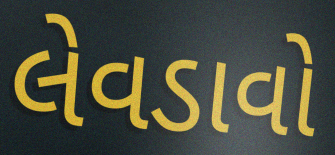
લેવડાવો